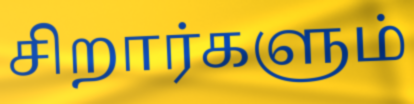
சிறார்களும்